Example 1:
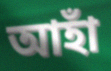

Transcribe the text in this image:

আহাঁ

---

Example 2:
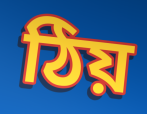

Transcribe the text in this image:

ঠিয়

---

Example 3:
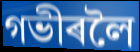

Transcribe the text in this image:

গভীৰলৈ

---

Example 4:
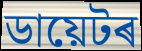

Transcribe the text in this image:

ডায়েটৰ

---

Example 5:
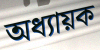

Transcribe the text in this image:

অধ্যায়ক